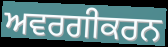
ਅਵਰਗੀਕਰਨ